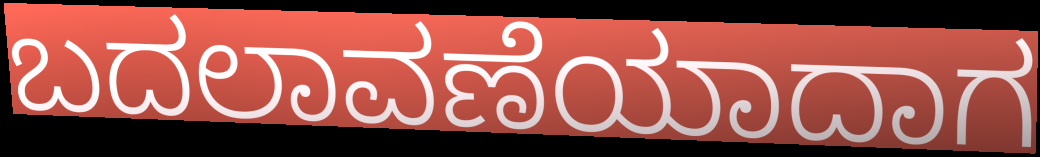
ಬದಲಾವಣೆಯಾದಾಗ